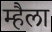
म्हैला